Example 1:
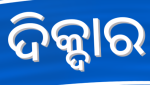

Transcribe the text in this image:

ଦିକ୍ଦାର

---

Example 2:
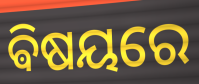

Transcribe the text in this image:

ଵିଷୟରେ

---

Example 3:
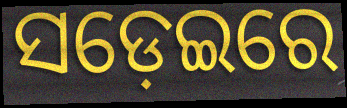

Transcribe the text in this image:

ସଡ଼େଇରେ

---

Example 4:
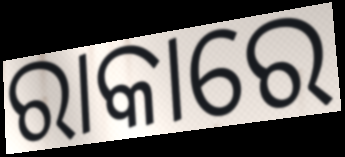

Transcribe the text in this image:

ରାକାରେ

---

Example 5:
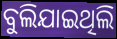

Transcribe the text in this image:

ବୁଲିଯାଇଥିଲି